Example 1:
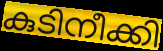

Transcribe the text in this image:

കുടിനീക്കി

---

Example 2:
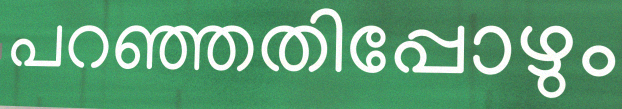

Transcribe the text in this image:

പറഞ്ഞതിപ്പോഴും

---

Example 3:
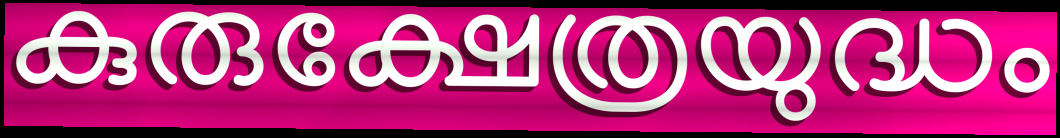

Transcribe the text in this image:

കുരുക്ഷേത്രയുദ്ധം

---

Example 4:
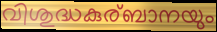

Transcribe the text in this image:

വിശുദ്ധകുര്ബാനയും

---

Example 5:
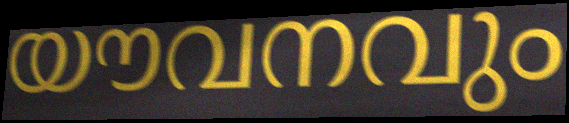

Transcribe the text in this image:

യൗവനവും